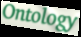
Ontology